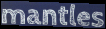
mantles